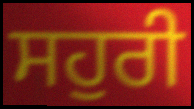
ਸਹੁਰੀ